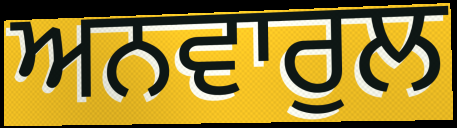
ਅਨਵਾਰੁਲ